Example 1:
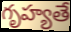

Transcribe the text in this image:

గృహ్యతే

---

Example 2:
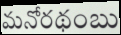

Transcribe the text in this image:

మనోరథంబు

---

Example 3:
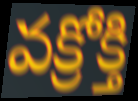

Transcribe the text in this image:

వక్రోక్తి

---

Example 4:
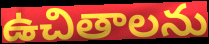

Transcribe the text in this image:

ఉచితాలను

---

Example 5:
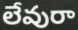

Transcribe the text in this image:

లేవురా